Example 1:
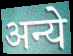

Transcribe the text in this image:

अन्ये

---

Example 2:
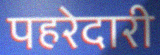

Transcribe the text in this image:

पहरेदारी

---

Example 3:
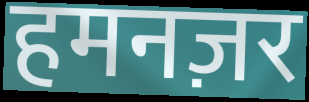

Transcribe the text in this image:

हमनज़र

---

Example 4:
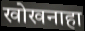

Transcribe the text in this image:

खोखनाहा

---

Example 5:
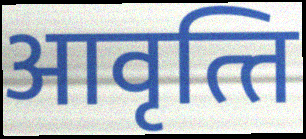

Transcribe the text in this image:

आवृत्‍ति